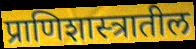
प्राणिशास्त्रातील